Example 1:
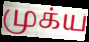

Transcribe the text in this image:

முக்ய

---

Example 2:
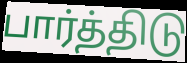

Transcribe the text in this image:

பார்த்திடு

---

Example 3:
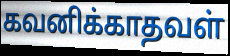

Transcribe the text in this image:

கவனிக்காதவள்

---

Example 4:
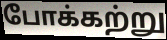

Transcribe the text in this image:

போக்கற்று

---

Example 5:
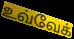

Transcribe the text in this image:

உவ்வேக்